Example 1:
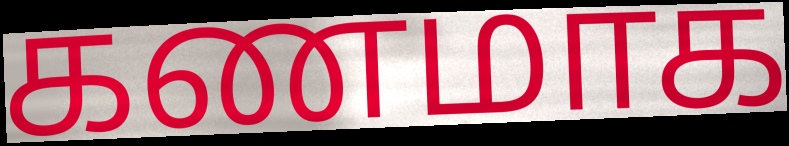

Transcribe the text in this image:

கணமாக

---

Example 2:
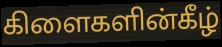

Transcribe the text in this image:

கிளைகளின்கீழ்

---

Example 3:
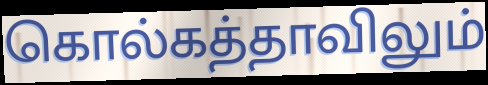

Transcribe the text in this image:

கொல்கத்தாவிலும்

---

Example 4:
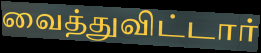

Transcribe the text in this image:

வைத்துவிட்டார்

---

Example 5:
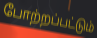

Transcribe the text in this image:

போற்றப்பட்டும்